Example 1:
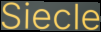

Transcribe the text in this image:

Siecle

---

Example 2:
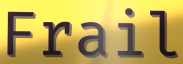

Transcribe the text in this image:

Frail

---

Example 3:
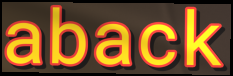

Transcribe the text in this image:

aback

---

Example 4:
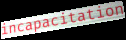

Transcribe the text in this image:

incapacitation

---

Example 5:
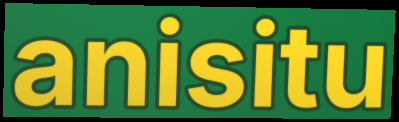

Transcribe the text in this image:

anisitu